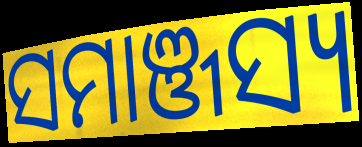
ସମାଞ୍ଜସ୍ୟ